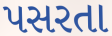
પસરતા